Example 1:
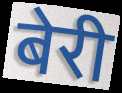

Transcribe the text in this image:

बेरी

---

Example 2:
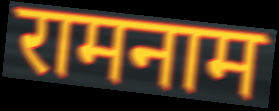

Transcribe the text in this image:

रामनाम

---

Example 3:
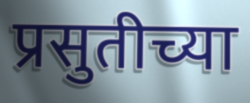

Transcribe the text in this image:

प्रसुतीच्या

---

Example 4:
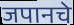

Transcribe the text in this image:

जपानचे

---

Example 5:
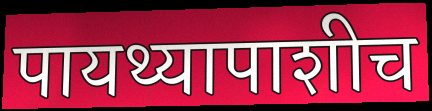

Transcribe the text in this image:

पायथ्यापाशीच